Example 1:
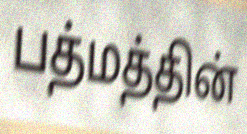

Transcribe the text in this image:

பத்மத்தின்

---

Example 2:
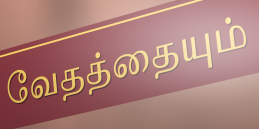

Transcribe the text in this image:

வேதத்தையும்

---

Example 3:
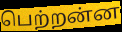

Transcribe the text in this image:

பெற்றன்ன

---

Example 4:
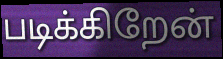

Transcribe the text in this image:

படிக்கிறேன்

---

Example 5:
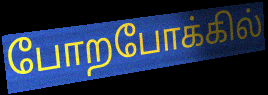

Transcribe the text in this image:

போறபோக்கில்